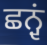
ਛਨ੍ਦਂ